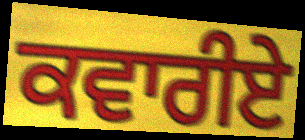
ਕਵਾਰੀਏ